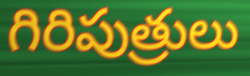
గిరిపుత్రులు